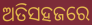
ଅତିସହଜରେ